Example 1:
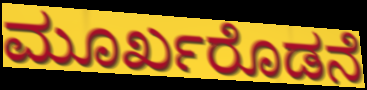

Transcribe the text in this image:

ಮೂರ್ಖರೊಡನೆ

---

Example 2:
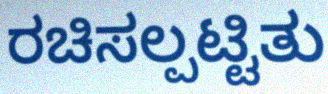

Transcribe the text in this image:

ರಚಿಸಲ್ಪಟ್ಟಿತು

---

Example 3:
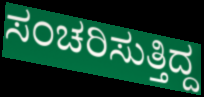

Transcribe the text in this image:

ಸಂಚರಿಸುತ್ತಿದ್ದ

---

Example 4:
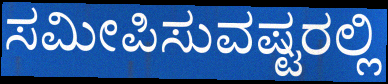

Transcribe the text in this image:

ಸಮೀಪಿಸುವಷ್ಟರಲ್ಲಿ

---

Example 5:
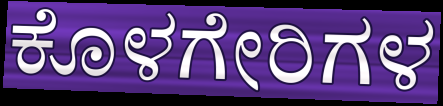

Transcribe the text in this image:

ಕೊಳಗೇರಿಗಳ